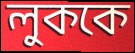
লুককে